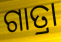
ଗାତ୍ରା